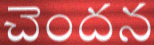
చెందన